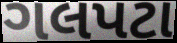
ગલપટા